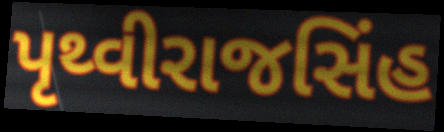
પૃથ્વીરાજસિંહ